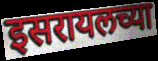
इसरायलच्या